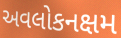
અવલોકનક્ષમ